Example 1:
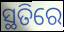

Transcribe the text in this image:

ସ୍ଥତିରେ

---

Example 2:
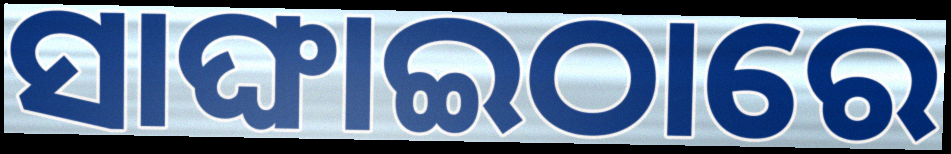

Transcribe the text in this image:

ସାଙ୍ଘାଇଠାରେ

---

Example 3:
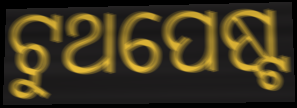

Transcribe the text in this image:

ଟୁଥପେଷ୍ଟ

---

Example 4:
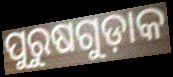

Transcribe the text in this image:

ପୁରୁଷଗୁଡ଼ାକ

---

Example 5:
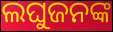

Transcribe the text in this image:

ଲଘୁଜନଙ୍କ